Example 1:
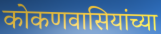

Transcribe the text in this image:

कोकणवासियांच्या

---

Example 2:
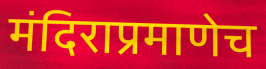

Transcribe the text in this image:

मंदिराप्रमाणेच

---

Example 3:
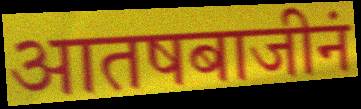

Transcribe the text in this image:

आतषबाजीनं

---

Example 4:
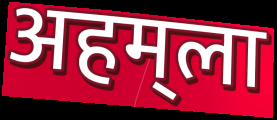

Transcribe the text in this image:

अहम्‌ला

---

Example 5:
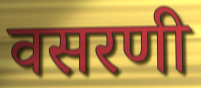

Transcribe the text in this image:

वसरणी